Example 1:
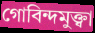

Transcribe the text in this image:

গোবিন্দমুক্ত্বা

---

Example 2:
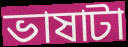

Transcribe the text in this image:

ভাষাটা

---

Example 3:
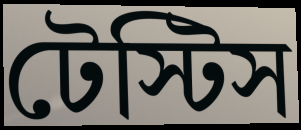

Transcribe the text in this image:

টেস্টিস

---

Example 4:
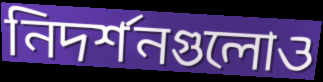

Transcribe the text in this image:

নিদর্শনগুলোও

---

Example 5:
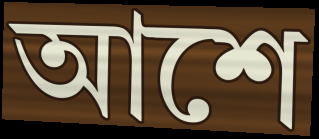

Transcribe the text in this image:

আশে